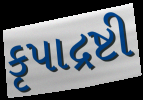
કૃપાદ્રષ્ટી